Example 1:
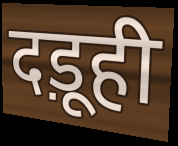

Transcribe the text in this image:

दड़ूही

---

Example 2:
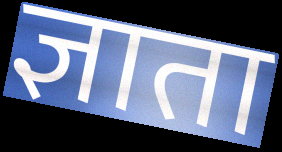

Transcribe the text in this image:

ज्ञाता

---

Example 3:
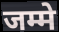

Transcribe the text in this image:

जम्मे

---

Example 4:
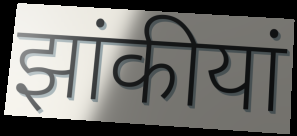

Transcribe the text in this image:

झांकीयां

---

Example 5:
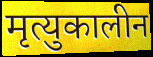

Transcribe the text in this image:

मृत्युकालीन